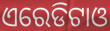
ଏରେଡିଟାଓ